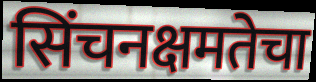
सिंचनक्षमतेचा